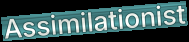
Assimilationist